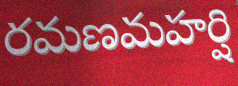
రమణమహర్షి